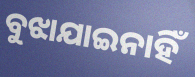
ବୁଝାଯାଇନାହିଁ